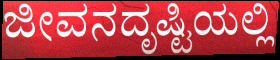
ಜೀವನದೃಷ್ಟಿಯಲ್ಲಿ